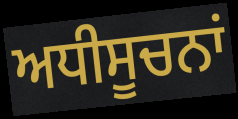
ਅਧੀਸੂਚਨਾਂ